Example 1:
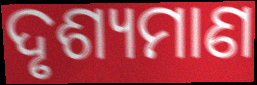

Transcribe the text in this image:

ଦୃଶ୍ୟମାଣ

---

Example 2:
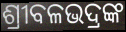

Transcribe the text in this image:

ଶ୍ରୀବଳଭଦ୍ରଙ୍କ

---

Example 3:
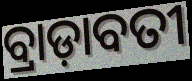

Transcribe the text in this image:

ବ୍ରାଡ଼ାବତୀ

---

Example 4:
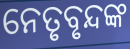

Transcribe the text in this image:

ନେତୃବୃନ୍ଦଙ୍କ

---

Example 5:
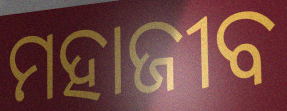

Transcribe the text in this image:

ମହାଜୀବ